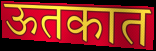
ऊतकात